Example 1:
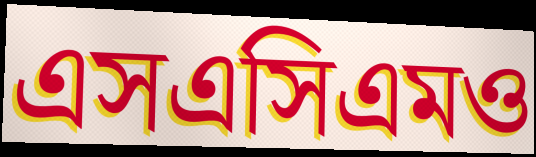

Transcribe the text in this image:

এসএসিএমও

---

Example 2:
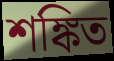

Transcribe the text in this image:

শঙ্কিত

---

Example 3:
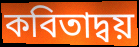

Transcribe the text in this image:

কবিতাদ্বয়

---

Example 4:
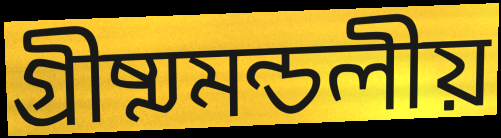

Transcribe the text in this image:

গ্রীষ্মমন্ডলীয়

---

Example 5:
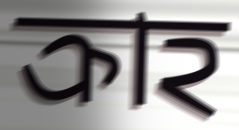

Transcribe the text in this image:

ক্রাহ